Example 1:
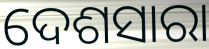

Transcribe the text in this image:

ଦେଶସାରା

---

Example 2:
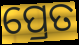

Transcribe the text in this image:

ପ୍ରେତ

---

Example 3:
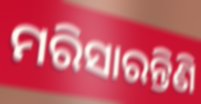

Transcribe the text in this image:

ମରିସାରନ୍ତିଣି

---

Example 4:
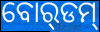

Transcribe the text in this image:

ବୋର୍‌ଡମ୍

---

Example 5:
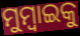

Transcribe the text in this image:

ମୁମ୍ୱାଇକୁ